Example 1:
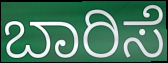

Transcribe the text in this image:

ಬಾರಿಸೆ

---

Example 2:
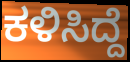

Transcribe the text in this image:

ಕಳಿಸಿದ್ದೆ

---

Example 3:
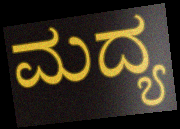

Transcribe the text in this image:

ಮದ್ಯ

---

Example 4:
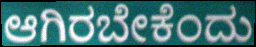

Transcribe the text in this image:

ಆಗಿರಬೇಕೆಂದು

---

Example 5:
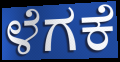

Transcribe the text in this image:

ಳೆಗಕೆ